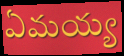
ఏమయ్య